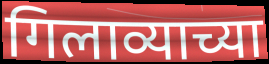
गिलाव्याच्या